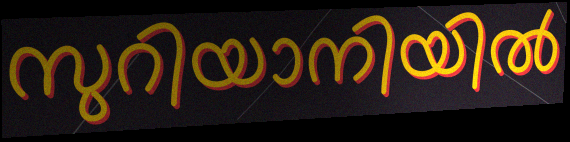
സുറിയാനിയിൽ